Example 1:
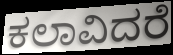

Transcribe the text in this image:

ಕಲಾವಿದರೆ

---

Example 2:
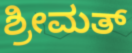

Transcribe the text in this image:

ಶ್ರೀಮತ್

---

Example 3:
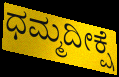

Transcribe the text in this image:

ಧಮ್ಮದೀಕ್ಷೆ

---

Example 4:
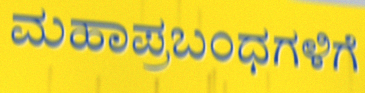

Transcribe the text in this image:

ಮಹಾಪ್ರಬಂಧಗಳಿಗೆ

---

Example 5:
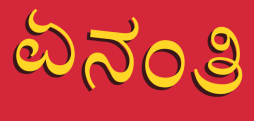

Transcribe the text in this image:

ಏನಂತಿ